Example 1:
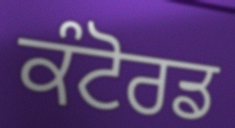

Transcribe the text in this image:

ਕੰਟੋਰਡ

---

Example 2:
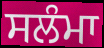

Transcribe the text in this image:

ਸਲੰਮਾ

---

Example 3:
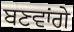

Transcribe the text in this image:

ਬਣਵਾਂਗੇ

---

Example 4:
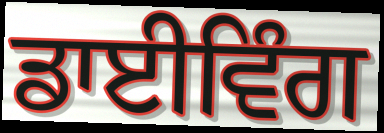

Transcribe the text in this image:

ਡਾਈਵਿੰਗ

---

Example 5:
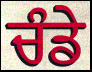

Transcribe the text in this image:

ਚੰਡੇ